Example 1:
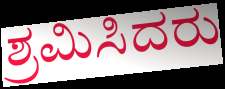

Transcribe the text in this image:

ಶ್ರಮಿಸಿದರು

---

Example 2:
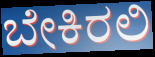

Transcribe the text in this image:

ಬೇಕಿರಲಿ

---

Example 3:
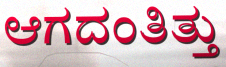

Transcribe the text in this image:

ಆಗದಂತಿತ್ತು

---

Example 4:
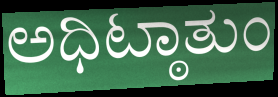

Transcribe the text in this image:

ಅಧಿಟ್ಠಾತುಂ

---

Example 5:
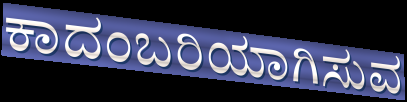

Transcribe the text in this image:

ಕಾದಂಬರಿಯಾಗಿಸುವ